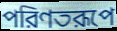
পরিণতরূপে